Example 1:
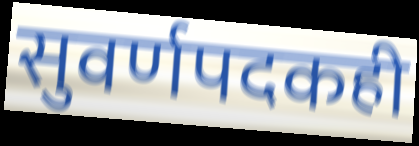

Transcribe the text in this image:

सुवर्णपदकही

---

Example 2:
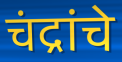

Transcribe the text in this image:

चंद्रांचे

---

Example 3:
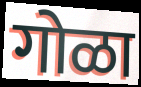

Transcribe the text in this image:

गोळा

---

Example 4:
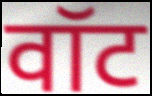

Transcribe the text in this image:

वॉट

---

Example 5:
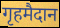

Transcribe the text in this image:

गृहमैदान